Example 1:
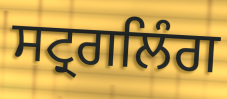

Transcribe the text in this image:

ਸਟ੍ਰਗਲਿੰਗ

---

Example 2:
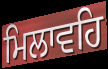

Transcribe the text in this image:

ਮਿਲਾਵਹਿ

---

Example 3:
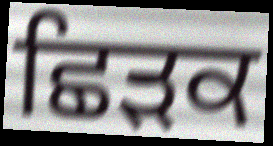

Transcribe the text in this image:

ਛਿੜਕ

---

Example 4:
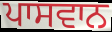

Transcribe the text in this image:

ਪਾਸਵਾਨ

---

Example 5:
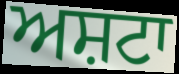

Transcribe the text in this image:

ਅਸ਼ਟਾ